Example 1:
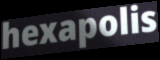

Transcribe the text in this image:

hexapolis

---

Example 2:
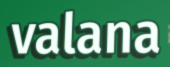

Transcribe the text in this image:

valana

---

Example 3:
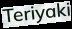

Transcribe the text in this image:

Teriyaki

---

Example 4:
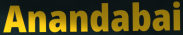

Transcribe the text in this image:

Anandabai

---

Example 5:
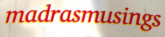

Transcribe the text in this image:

madrasmusings